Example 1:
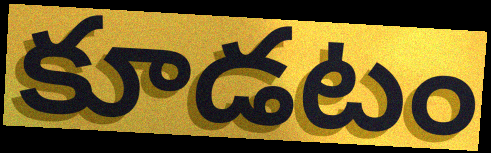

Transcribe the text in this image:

కూడటం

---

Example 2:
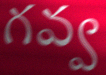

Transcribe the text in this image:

గవ్వ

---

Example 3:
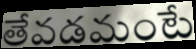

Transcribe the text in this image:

తేవడమంటే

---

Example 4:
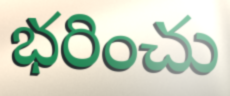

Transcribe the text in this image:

భరించు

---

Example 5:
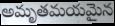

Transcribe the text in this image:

అమృతమయమైన